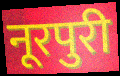
नूरपुरी